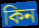
কিন